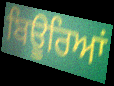
ਬਿਊਰਿਆਂ